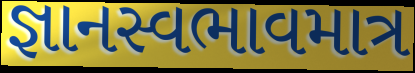
જ્ઞાનસ્વભાવમાત્ર